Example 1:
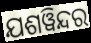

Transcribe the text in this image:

ଯଶୱିନ୍ଦର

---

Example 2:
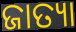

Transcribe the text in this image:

ଜାତ୍ୟା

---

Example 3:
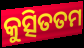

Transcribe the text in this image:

କୁତ୍ସିତତମ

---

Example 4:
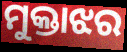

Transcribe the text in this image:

ମୁକ୍ତାଝର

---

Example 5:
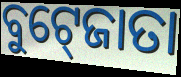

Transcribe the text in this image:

ବୁଟ୍‍ଜୋତା